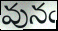
వునఁ